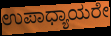
ಉಪಾಧ್ಯಾಯರೇ